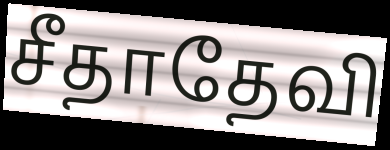
சீதாதேவி